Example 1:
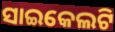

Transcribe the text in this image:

ସାଇକେଲଟି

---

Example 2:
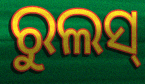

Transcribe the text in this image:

ରୁଲସ୍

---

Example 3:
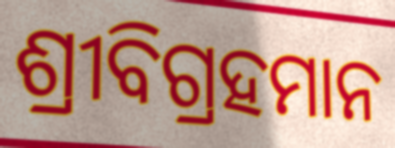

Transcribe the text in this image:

ଶ୍ରୀବିଗ୍ରହମାନ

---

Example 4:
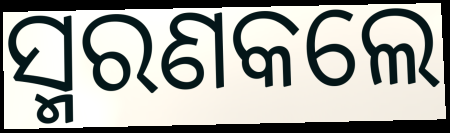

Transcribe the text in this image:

ସ୍ମରଣକଲେ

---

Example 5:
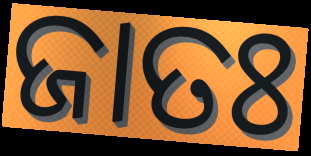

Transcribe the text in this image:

ଜାତଃ